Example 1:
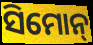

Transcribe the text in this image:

ସିମୋନ୍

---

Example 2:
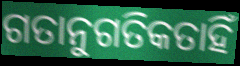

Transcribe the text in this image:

ଗତାନୁଗତିକତାହିଁ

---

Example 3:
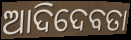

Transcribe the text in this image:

ଆଦିଦେବତା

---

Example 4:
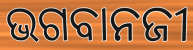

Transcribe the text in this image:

ଭଗବାନଜୀ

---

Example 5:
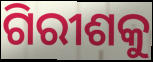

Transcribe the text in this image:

ଗିରୀଶକୁ